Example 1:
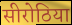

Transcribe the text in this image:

सीरोठिया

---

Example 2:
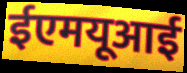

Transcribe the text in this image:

ईएमयूआई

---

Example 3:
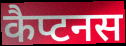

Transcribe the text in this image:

कैप्टनस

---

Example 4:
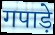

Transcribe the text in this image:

गपाड़े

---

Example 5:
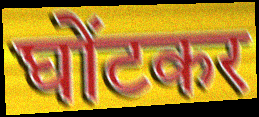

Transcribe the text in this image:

घोंटकर